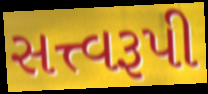
સત્ત્વરૂપી